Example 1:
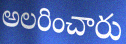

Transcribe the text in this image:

అలరించారు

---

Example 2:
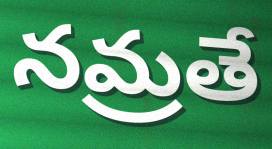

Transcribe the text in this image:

నమ్రతే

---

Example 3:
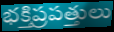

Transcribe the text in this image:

భక్తిప్రపత్తులు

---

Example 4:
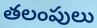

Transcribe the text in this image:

తలంపులు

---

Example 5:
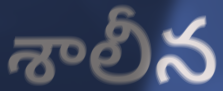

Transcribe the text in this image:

శాలీన